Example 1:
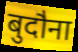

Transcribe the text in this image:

बुदौना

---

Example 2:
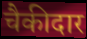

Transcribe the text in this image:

चैकीदार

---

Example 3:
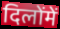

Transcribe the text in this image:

दिलोंमें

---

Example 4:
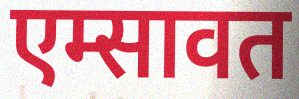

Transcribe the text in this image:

एम्सावत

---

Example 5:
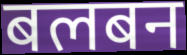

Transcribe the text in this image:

बलबन